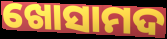
ଖୋସାମଦ